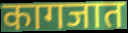
कागजात